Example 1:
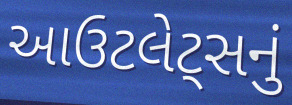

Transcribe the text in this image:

આઉટલેટ્સનું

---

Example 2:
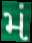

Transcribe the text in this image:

મં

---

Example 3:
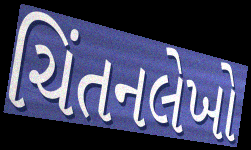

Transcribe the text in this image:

ચિંતનલેખો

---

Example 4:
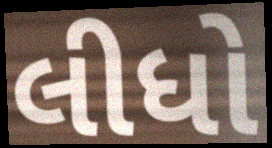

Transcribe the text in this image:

લીધો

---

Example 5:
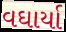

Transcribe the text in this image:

વઘાર્યા